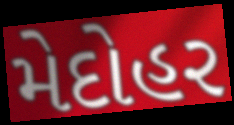
મેદોહર